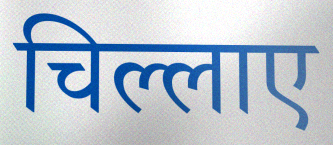
चिल्लाए